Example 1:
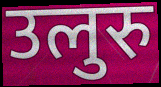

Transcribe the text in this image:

उलुरु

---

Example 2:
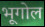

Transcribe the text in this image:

भूगोल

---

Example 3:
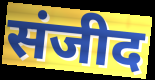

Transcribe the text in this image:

संजीद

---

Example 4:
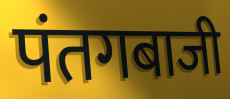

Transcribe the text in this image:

पंतगबाजी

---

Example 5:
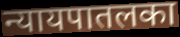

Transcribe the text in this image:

न्यायपातलका